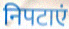
निपटाएं